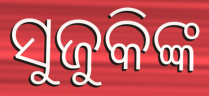
ସୁଜୁକିଙ୍କ